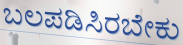
ಬಲಪಡಿಸಿರಬೇಕು